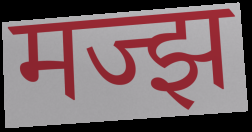
मज्झ